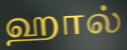
ஹால்